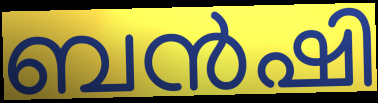
ബൻഷി